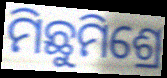
ମିଛୁମିଶ୍ରେ